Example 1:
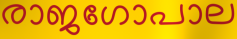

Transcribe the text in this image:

രാജഗോപാല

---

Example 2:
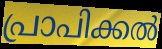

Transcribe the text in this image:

പ്രാപിക്കൽ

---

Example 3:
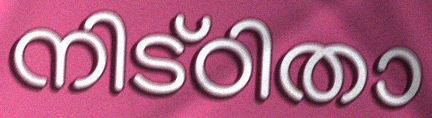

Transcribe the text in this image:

നിട്ഠിതാ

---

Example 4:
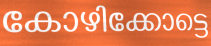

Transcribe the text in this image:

കോഴിക്കോട്ടെ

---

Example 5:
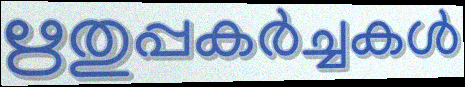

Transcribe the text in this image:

ഋതുപ്പകർച്ചകൾ